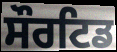
ਸੌਰਟਿਡ